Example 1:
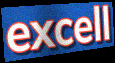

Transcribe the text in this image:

excell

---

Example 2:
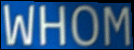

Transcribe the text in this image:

WHOM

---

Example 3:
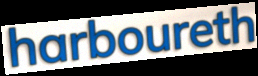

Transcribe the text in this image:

harboureth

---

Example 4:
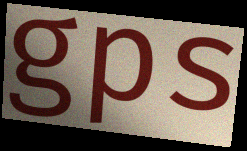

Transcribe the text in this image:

gps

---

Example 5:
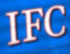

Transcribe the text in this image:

IFC